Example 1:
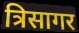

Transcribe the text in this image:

त्रिसागर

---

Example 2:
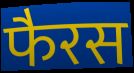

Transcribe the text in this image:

फैरस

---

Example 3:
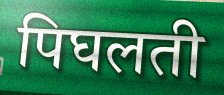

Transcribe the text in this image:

पिघलती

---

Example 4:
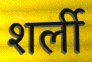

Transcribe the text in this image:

शर्ली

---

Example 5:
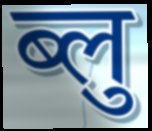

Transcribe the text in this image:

ब्लु